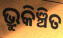
ଭ୍ରୁକିଞ୍ଚିତ